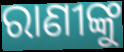
ରାଣୀଙ୍କୁ